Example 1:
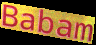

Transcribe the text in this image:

Babam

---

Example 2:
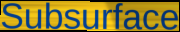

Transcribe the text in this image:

Subsurface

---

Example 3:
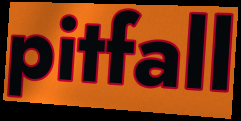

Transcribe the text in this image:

pitfall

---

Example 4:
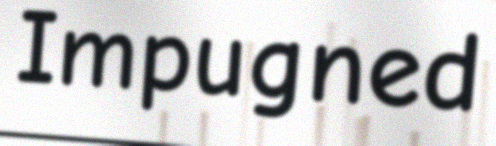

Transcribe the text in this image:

Impugned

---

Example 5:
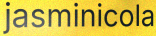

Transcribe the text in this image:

jasminicola